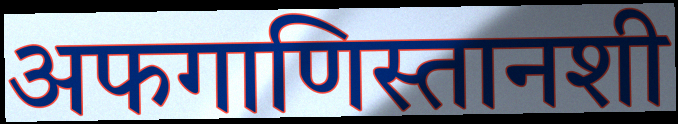
अफगाणिस्तानशी